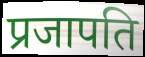
प्रजापति